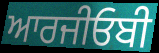
ਆਰਜੀਓਬੀ